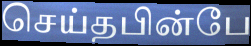
செய்தபின்பே